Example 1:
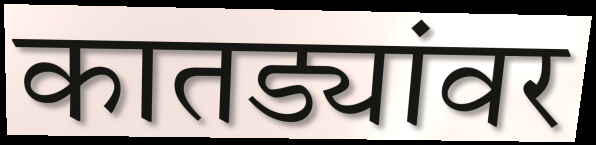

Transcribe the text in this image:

कातड्यांवर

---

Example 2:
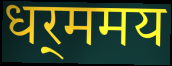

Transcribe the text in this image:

धर्ममय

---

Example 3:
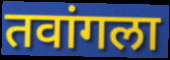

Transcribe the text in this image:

तवांगला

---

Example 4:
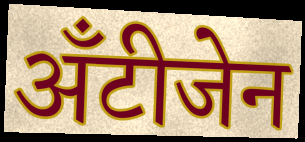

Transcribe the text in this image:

अँटीजेन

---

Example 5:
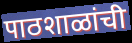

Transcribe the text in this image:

पाठशाळांची